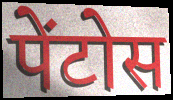
पेंटोस